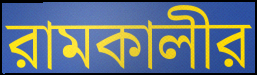
রামকালীর